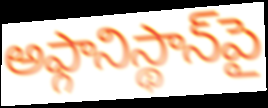
అఫ్గానిస్థాన్‌పై